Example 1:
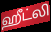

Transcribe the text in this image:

ஹீட்லி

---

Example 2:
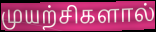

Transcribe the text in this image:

முயற்சிகளால்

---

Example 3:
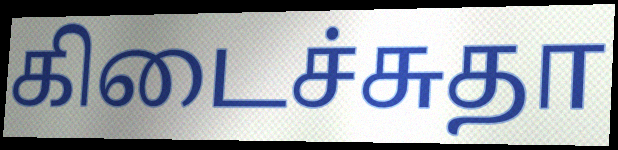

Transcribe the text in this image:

கிடைச்சுதா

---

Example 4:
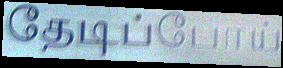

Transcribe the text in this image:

தேடிப்போய்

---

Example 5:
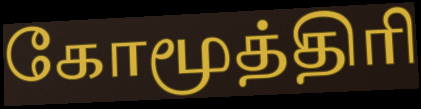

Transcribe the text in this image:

கோமூத்திரி